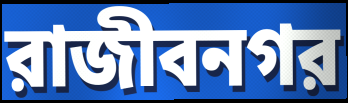
রাজীবনগর